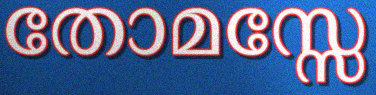
തോമസ്സേ